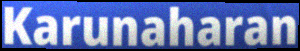
Karunaharan